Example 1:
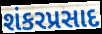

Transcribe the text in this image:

શંકરપ્રસાદ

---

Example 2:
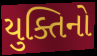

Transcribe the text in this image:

યુક્તિનો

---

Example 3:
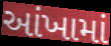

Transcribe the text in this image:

આંખામાં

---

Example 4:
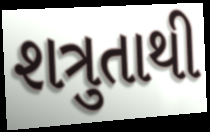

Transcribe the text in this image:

શત્રુતાથી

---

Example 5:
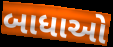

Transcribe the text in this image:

બાધાઓ